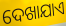
ଦେଖାଯାଏ